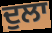
ਦੁਲਾ